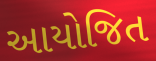
આયોજિત